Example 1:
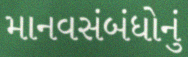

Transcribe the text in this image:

માનવસંબંધોનું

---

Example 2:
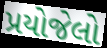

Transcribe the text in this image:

પ્રયોજેલો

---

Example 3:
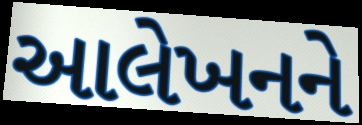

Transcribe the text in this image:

આલેખનને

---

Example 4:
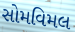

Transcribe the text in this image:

સોમવિમલ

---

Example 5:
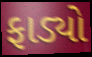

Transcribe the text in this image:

ફાડ્યો